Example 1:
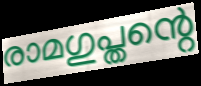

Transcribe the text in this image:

രാമഗുപ്തന്റെ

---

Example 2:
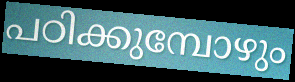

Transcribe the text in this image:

പഠിക്കുമ്പോഴും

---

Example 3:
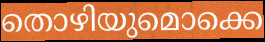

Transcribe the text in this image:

തൊഴിയുമൊക്കെ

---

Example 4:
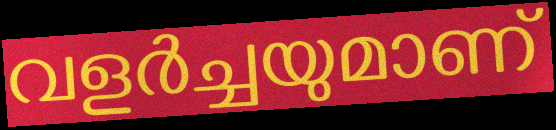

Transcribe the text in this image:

വളർച്ചയുമാണ്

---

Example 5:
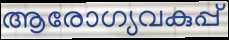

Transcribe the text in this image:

ആരോഗ്യവകുപ്പ്